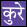
कुरे